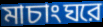
মাচাংঘরে